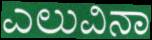
ಎಲುವಿನಾ